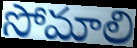
సోమాలి